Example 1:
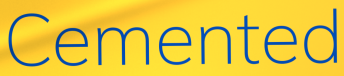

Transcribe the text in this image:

Cemented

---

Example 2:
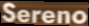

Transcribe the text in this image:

Sereno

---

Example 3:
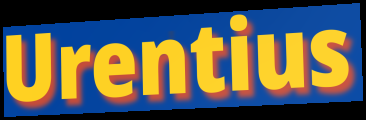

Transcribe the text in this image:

Urentius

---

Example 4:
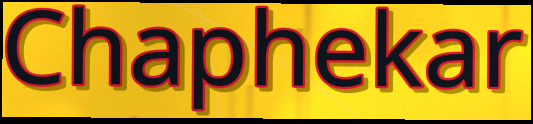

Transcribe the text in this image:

Chaphekar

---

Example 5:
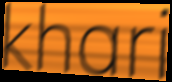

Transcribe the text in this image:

khari